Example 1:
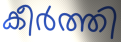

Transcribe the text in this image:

കീർത്തി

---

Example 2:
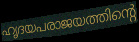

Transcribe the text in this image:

ഹൃദയപരാജയത്തിന്റെ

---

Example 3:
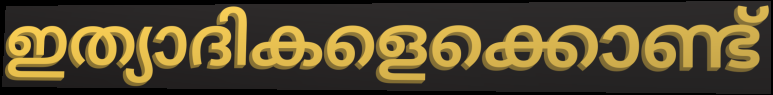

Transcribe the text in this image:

ഇത്യാദികളെക്കൊണ്ട്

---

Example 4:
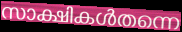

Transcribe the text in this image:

സാക്ഷികൾതന്നെ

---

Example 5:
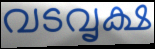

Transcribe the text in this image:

വടവൃക്ഷ